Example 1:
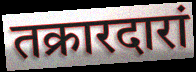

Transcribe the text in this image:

तक्रारदारां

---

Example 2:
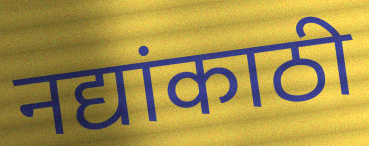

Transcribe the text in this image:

नद्यांकाठी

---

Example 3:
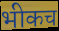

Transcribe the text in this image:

भीकच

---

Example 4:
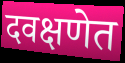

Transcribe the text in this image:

दवक्षणेत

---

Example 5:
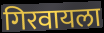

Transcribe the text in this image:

गिरवायला